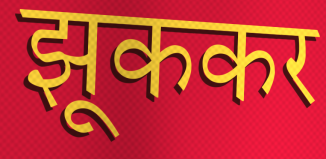
झूककर